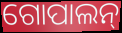
ଗୋପାଲନ୍